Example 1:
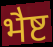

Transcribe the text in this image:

भैष्ट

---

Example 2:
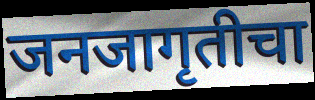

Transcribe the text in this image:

जनजागृतीचा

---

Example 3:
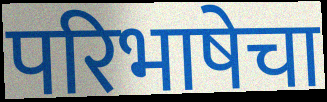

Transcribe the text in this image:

परिभाषेचा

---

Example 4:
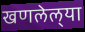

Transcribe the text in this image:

खणलेल्या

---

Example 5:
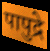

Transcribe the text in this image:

पापुद्रे